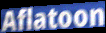
Aflatoon